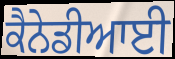
ਕੈਨੇਡੀਆਈ